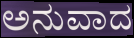
ಅನುವಾದ